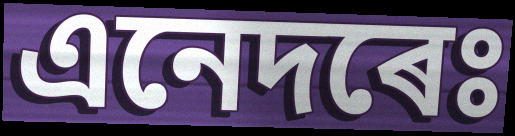
এনেদৰেঃ